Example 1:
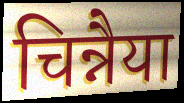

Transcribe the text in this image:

चिन्नैया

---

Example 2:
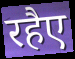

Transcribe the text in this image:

रहैए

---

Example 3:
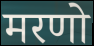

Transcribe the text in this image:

मरणो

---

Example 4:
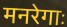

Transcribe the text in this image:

मनरेगाः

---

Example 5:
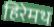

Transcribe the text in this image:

हिरेमथ